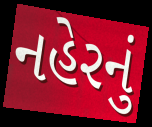
નહેરનું